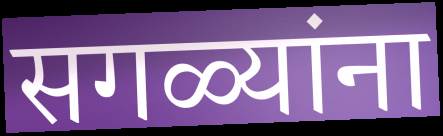
सगळ्यांना